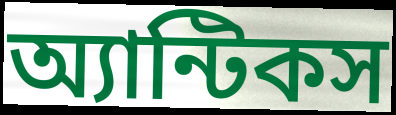
অ্যান্টিকস